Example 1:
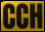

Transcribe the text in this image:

CCH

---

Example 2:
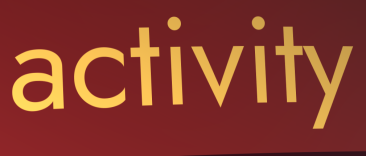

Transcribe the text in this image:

activity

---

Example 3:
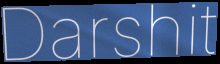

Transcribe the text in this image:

Darshit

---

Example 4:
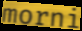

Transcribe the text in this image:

morni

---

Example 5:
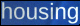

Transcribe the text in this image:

housing